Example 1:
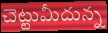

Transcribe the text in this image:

చెట్టుమీదున్న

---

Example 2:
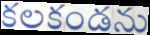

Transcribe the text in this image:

కలకండను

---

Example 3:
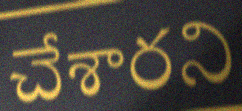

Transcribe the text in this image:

చేశారని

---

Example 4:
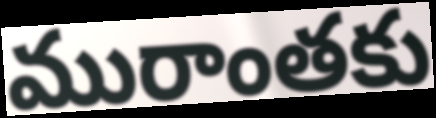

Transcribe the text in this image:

మురాంతకు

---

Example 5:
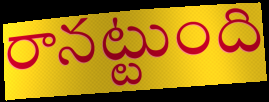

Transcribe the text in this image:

రానట్టుంది